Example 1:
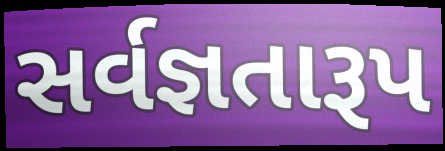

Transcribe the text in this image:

સર્વજ્ઞતારૂપ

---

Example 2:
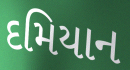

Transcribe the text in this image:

દમિયાન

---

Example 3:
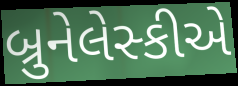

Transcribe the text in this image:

બ્રુનેલેસ્કીએ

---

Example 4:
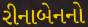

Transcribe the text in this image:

રીનાબેનનો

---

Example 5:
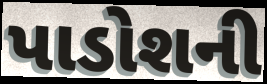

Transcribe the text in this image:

પાડોશની